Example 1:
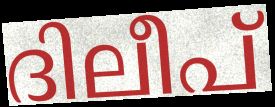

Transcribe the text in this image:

ദിലീപ്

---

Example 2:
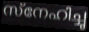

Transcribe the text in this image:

സ്‌നേഹിച്ചു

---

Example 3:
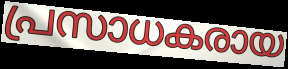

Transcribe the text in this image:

പ്രസാധകരായ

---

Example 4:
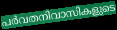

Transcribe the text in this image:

പർവതനിവാസികളുടെ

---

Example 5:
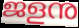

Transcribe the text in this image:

ജളനു